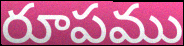
రూపము